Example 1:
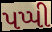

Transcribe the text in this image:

પપ્પી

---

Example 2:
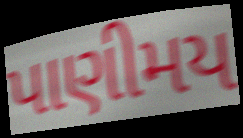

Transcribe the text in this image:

પાણીમય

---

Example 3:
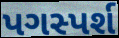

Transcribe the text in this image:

પગસ્પર્શ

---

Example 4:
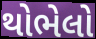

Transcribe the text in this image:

થોભેલો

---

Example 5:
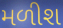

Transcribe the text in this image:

મળીશ